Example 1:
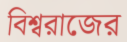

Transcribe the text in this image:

বিশ্বরাজের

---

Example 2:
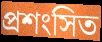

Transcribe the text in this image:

প্রশংসিত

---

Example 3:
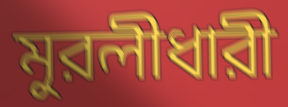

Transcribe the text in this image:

মুরলীধারী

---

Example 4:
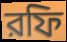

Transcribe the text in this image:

রফি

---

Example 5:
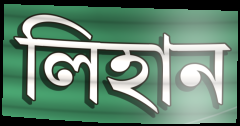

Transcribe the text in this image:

লিহান